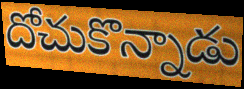
దోచుకొన్నాడు